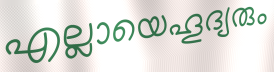
എല്ലായെഹൂദ്യരും